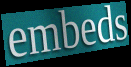
embeds